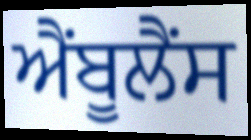
ਐਂਬੂਲੈਂਸ